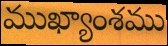
ముఖ్యాంశము